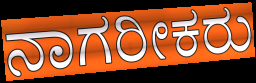
ನಾಗರೀಕರು